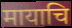
मायाचि